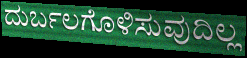
ದುರ್ಬಲಗೊಳಿಸುವುದಿಲ್ಲ